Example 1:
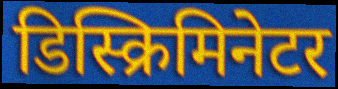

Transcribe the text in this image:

डिस्क्रिमिनेटर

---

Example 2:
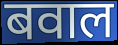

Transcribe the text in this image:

बवाल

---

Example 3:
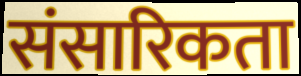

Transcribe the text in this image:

संसारिकता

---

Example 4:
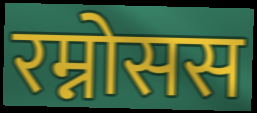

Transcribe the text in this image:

रम्नोसस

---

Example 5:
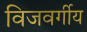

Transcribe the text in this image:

विजवर्गीय